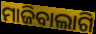
ମାଜିବାଲାଗି